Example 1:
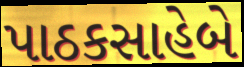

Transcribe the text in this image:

પાઠકસાહેબે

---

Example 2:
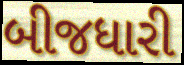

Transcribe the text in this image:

બીજધારી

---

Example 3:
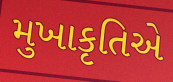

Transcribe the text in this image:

મુખાકૃતિએ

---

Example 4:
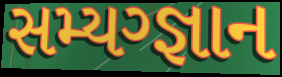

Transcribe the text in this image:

સમ્યગ્જ્ઞાન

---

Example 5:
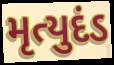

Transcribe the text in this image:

મૃત્યુદંડ